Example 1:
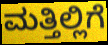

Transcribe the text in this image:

ಮತ್ತಿಲ್ಲಿಗೆ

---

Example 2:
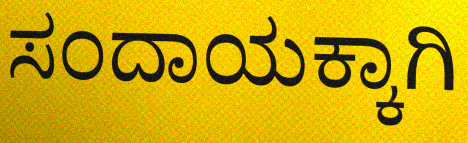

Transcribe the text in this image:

ಸಂದಾಯಕ್ಕಾಗಿ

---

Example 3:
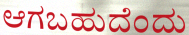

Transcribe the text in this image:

ಆಗಬಹುದೆಂದು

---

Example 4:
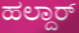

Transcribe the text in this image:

ಹಲ್ದಾರ್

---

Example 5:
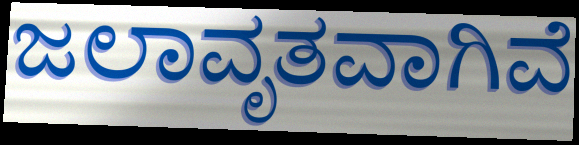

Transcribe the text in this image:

ಜಲಾವೃತವಾಗಿವೆ